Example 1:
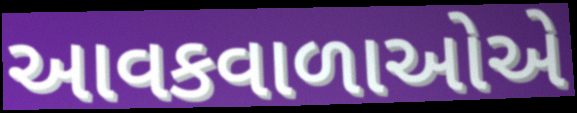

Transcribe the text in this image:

આવકવાળાઓએ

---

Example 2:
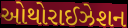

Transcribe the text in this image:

ઓથોરાઈઝેશન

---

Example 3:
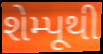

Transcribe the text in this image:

શેમ્પૂથી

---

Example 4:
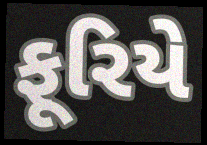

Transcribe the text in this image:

ફૂરિયે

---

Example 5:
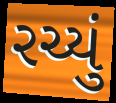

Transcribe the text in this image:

રચ્યું